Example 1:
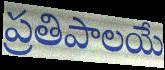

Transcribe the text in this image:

ప్రతిపాలయే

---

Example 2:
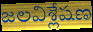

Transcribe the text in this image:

జలవిశ్లేషణ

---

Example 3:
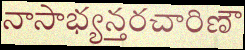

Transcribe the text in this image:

నాసాభ్యన్తరచారిణౌ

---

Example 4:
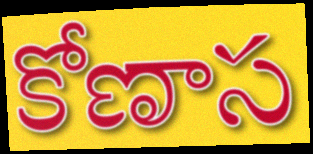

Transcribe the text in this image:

కోణాస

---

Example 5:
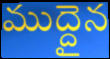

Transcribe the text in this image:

ముద్దైన